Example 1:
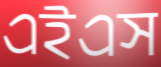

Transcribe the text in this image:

এইএস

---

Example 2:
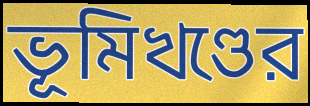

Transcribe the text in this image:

ভূমিখণ্ডের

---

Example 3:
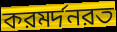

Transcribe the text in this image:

করমর্দনরত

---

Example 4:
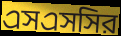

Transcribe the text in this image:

এসএসসির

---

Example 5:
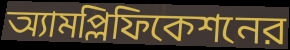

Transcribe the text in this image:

অ্যামপ্লিফিকেশনের